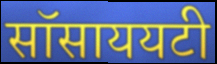
सॉसाययटी